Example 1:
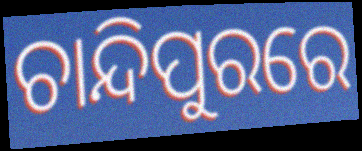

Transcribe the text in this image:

ଚାନ୍ଦିପୁରରେ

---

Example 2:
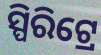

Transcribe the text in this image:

ସ୍ପିରିଟ୍ରେ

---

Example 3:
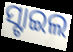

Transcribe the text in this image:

ସ୍ଟାଇଲ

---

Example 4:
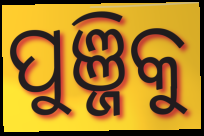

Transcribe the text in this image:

ପୁଞ୍ଜିକୁ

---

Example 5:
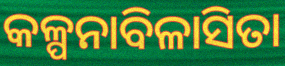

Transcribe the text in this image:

କଳ୍ପନାବିଳାସିତା